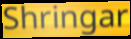
Shringar